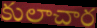
కులాచార